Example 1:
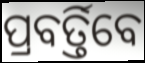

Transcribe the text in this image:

ପ୍ରବର୍ତ୍ତିବେ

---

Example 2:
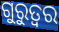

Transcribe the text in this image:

ଗୁରୁତ୍ବର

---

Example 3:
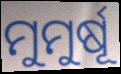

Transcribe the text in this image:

ମୁମୁର୍ଷୂ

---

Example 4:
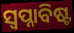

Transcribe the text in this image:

ସ୍ୱପ୍ନାବିଷ୍ଟ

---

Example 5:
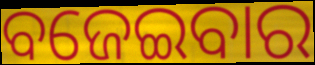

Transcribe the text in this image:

ବଜେଇବାର